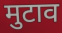
मुटाव